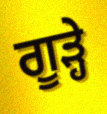
ਗੂੜ੍ਹੇ